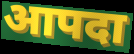
आपदा